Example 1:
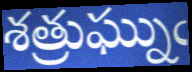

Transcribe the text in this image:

శత్రుఘ్నుఁ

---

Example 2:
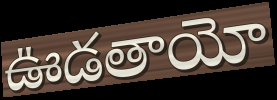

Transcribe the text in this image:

ఊడతాయో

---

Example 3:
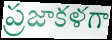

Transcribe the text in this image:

ప్రజాకళగా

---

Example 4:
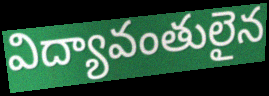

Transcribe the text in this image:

విద్యావంతులైన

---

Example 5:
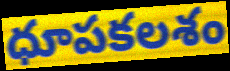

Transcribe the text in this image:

ధూపకలశం